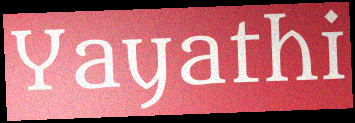
Yayathi